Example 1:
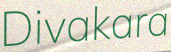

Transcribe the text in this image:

Divakara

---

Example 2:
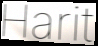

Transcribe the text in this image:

Harit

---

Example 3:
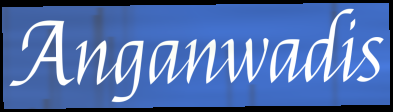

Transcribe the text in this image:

Anganwadis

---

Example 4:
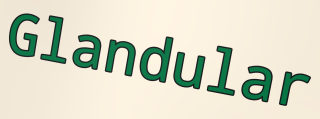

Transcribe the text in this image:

Glandular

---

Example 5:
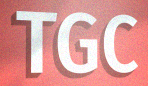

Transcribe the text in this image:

TGC